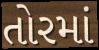
તોરમાં